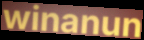
winanun